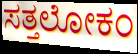
ಸತ್ತಲೋಕಂ